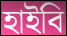
হাইবি